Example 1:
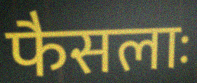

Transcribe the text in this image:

फैसलाः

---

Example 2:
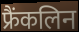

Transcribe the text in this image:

फ्रैंकलिन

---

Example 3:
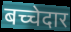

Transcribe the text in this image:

बच्चेदार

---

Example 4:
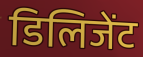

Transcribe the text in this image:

डिलिजेंट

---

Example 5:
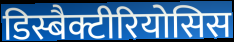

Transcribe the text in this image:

डिस्बैक्टीरियोसिस